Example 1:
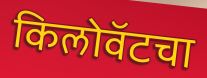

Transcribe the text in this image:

किलोवॅटचा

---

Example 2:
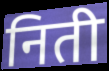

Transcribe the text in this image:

निती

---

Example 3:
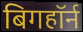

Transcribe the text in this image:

बिगहॉर्न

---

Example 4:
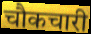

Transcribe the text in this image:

चौकचारी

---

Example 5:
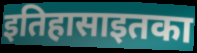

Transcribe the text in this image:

इतिहासाइतका